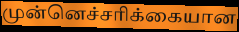
முன்னெச்சரிக்கையான